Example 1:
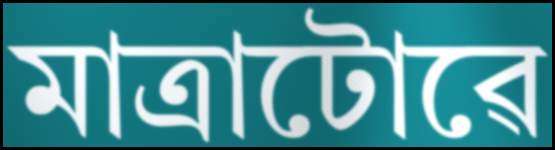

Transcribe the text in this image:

মাত্ৰাটোৱে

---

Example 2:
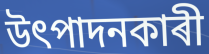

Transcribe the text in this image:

উৎপাদনকাৰী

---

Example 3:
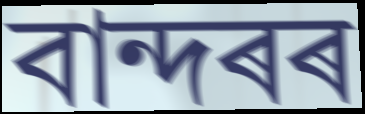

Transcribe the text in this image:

বান্দৰৰ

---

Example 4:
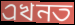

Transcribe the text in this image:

এখনত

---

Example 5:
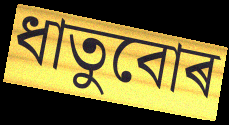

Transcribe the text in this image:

ধাতুবোৰ